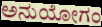
ಅನುಯೋಗಂ